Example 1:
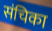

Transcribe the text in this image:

संचिका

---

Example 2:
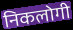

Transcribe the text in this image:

निकलोगी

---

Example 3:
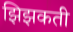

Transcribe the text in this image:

झिझकती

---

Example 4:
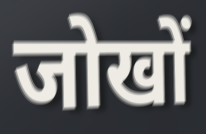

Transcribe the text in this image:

जोखों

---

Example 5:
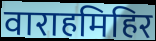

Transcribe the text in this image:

वाराहमिहिर